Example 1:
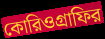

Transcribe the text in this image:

কোরিওগ্রাফির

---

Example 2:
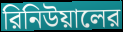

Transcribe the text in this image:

রিনিউয়ালের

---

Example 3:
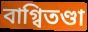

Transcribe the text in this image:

বাগ্বিতণ্ডা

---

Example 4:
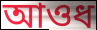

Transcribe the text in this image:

আওধ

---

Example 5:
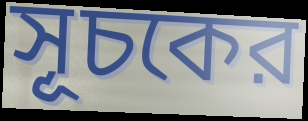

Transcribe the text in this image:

সূচকের